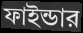
ফাইন্ডার